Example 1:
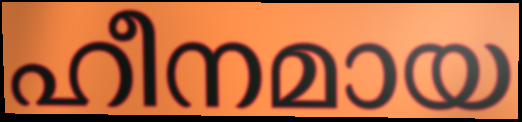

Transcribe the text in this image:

ഹീനമായ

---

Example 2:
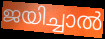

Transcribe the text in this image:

ജയിച്ചാൽ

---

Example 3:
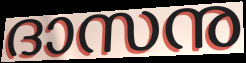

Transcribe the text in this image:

ദാസനു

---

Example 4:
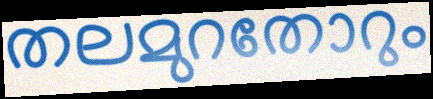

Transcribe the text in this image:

തലമുറതോറും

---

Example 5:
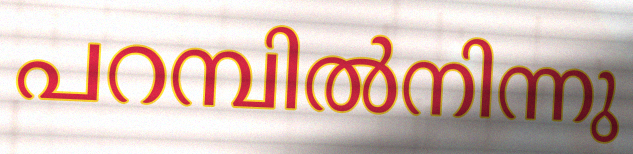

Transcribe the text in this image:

പറമ്പിൽനിന്നു